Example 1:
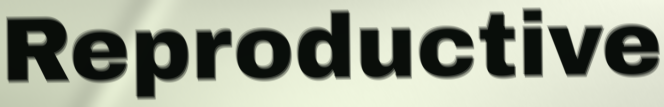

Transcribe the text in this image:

Reproductive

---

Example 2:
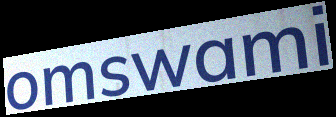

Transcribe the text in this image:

omswami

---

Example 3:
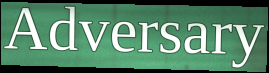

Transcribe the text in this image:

Adversary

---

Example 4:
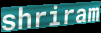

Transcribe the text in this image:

shriram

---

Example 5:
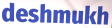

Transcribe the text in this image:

deshmukh